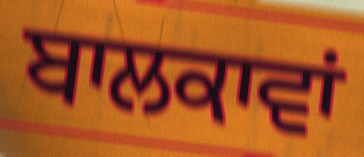
ਬਾਲਕਾਵਾਂ